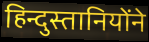
हिन्दुस्तानियोंने